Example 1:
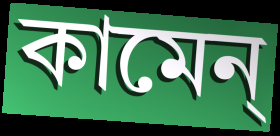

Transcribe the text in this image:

কামেন্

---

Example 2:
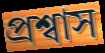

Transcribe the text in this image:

প্রশ্বাস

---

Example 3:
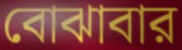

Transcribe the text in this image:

বোঝাবার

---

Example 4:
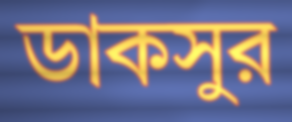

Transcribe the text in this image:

ডাকসুর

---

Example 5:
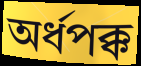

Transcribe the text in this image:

অর্ধপক্ক